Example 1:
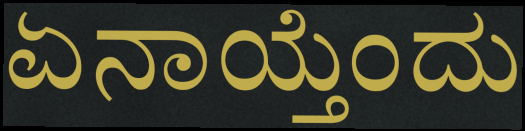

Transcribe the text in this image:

ಏನಾಯ್ತೆಂದು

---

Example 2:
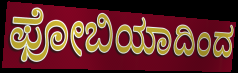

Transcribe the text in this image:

ಫೋಬಿಯಾದಿಂದ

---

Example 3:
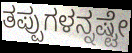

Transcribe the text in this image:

ತಪ್ಪುಗಳನ್ನಷ್ಟೇ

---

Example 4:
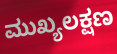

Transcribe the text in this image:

ಮುಖ್ಯಲಕ್ಷಣ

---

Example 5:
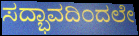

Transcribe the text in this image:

ಸದ್ಭಾವದಿಂದಲೇ